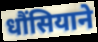
धौंसियाने